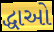
દ્ધાઓ